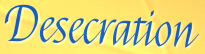
Desecration